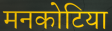
मनकोटिया